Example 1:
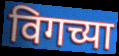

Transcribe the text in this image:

विगच्या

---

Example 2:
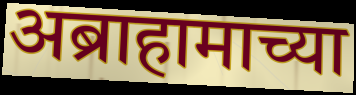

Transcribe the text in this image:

अब्राहामाच्या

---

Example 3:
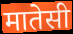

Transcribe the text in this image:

मातेसी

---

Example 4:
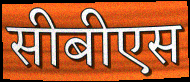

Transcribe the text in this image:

सीबीएस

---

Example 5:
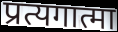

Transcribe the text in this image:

प्रत्यगात्मा